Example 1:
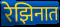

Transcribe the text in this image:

रेझिनात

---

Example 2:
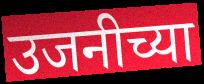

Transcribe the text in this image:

उजनीच्या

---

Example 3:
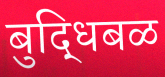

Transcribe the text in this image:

बुद्धिबळ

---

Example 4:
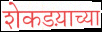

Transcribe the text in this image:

शेकडय़ाच्या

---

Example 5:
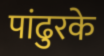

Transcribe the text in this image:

पांढुरके